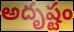
అదృష్టం